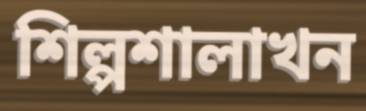
শিল্পশালাখন